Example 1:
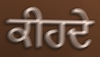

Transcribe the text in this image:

ਕੀਹਦੇ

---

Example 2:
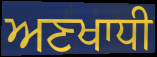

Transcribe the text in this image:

ਅਣਖਾਧੀ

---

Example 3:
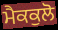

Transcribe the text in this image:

ਮੈਕਕੁਲੋ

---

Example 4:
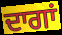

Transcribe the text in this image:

ਦਾਗਾਂ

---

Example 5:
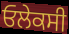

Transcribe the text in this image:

ਓਲੇਕਸੀ